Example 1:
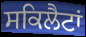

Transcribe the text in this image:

ਸਕਿਲੈਟਾਂ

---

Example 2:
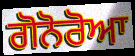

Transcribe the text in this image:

ਗੋਨੋਰੋਆ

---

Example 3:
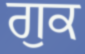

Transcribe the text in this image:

ਗੁਕ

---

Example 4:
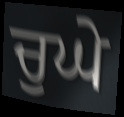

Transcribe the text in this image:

ਚੁਘੇ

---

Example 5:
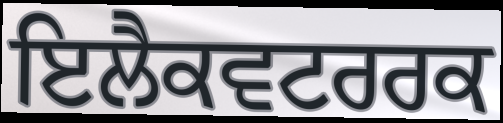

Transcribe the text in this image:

ਇਲੈਕਵਟਰਰਕ